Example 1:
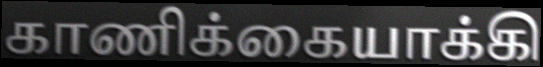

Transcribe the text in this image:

காணிக்கையாக்கி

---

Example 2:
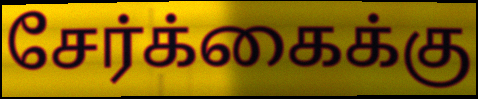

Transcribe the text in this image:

சேர்க்கைக்கு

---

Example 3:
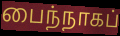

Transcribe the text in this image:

பைந்நாகப்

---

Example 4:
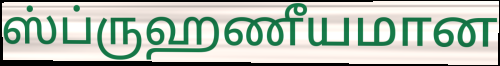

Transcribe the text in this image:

ஸ்ப்ருஹணீயமான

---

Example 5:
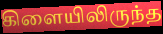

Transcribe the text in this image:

கிளையிலிருந்த